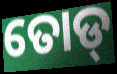
ତୋଡ୍